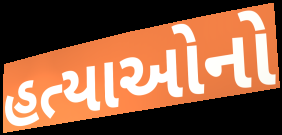
હત્યાઓનો